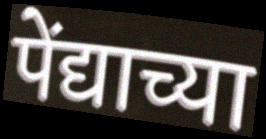
पेंद्याच्या